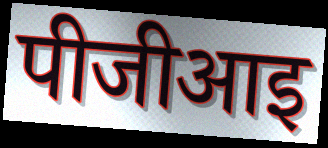
पीजीआइ